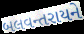
બલવન્તરાયને